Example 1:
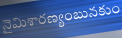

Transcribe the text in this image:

నైమిశారణ్యంబునకుం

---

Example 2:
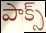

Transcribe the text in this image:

పాక్స్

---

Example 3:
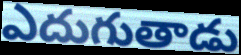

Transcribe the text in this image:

ఎదుగుతాడు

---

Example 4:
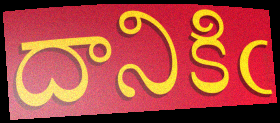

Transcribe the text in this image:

దానికిఁ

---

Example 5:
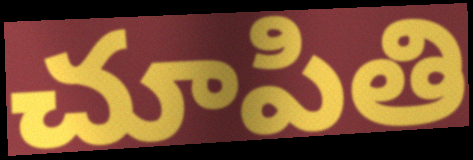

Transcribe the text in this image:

చూపితి